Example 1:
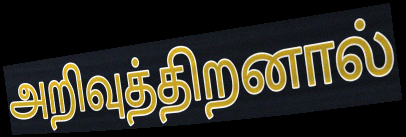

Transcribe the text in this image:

அறிவுத்திறனால்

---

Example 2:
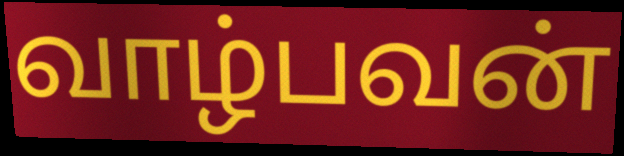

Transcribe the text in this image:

வாழ்பவன்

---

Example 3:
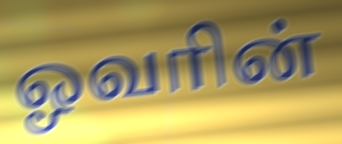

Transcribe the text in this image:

ஓவரின்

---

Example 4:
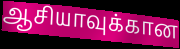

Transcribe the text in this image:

ஆசியாவுக்கான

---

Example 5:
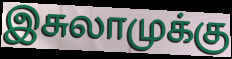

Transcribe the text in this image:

இசுலாமுக்கு